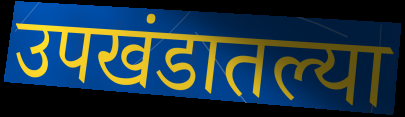
उपखंडातल्या